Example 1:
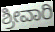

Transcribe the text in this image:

ಶ್ರೀವಾರಿ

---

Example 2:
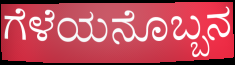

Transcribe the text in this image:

ಗೆಳೆಯನೊಬ್ಬನ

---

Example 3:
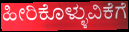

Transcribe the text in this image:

ಹೀರಿಕೊಳ್ಳುವಿಕೆಗೆ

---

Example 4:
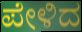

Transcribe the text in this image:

ಪೇಳಿದ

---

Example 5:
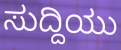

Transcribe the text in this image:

ಸುದ್ದಿಯು